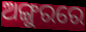
ଅଙ୍ଗୁରରେ